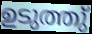
ഉടുത്തു്